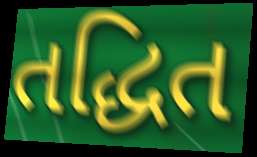
તદ્ધિત